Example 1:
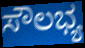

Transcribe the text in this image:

ಸೌಲಭ್ಯ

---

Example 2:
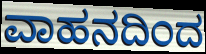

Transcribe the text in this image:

ವಾಹನದಿಂದ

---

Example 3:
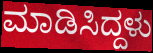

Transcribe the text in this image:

ಮಾಡಿಸಿದ್ದಳು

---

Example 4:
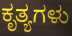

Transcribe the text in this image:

ಕೃತ್ಯಗಳು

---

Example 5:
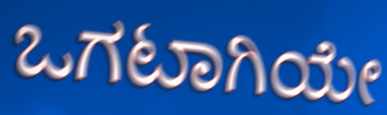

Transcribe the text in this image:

ಒಗಟಾಗಿಯೇ